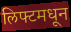
लिफ्टमधून